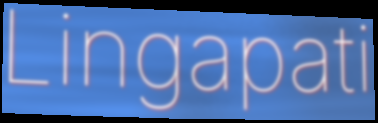
Lingapati